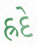
હ્રદે